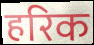
हरिक